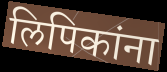
लिपिकांना